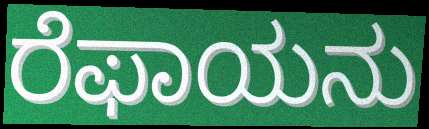
ರೆಫಾಯನು